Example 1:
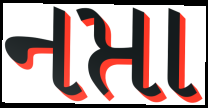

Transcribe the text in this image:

નપ્તા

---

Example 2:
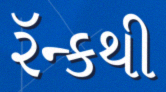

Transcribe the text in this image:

રૅન્કથી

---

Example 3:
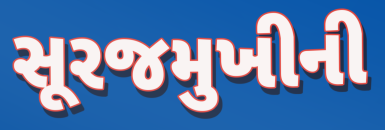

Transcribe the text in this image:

સૂરજમુખીની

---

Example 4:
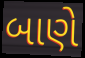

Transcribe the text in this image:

બાણે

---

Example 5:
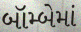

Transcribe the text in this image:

બૉમ્બેમાં